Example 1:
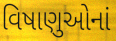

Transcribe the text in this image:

વિષાણુઓનાં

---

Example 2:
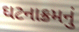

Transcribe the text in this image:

ઘટનાક્રમનું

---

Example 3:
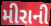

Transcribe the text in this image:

મીરાની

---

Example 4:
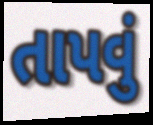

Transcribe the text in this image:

તાપવું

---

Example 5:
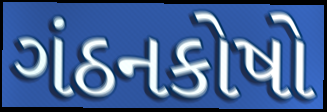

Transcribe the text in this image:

ગંઠનકોષો